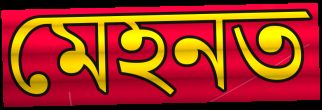
মেহনত